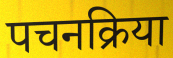
पचनक्रिया